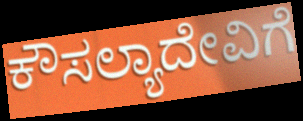
ಕೌಸಲ್ಯಾದೇವಿಗೆ